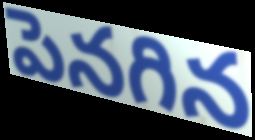
పెనగిన